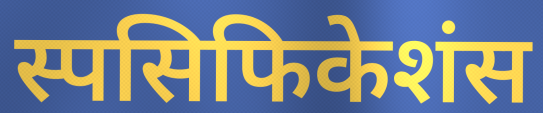
स्पसिफिकेशंस